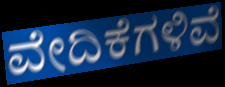
ವೇದಿಕೆಗಳಿವೆ